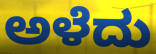
ಅಳೆದು